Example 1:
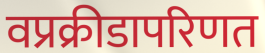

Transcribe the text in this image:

वप्रक्रीडापरिणत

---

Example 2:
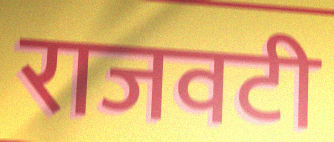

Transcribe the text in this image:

राजवटी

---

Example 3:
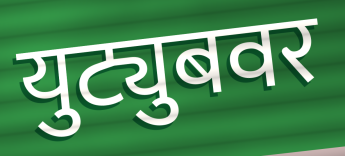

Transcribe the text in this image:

युट्युबवर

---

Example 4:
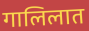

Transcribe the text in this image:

गालिलात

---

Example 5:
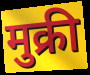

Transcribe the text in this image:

मुक्री